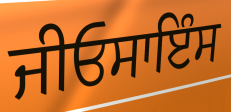
ਜੀਓਸਾਇੰਸ